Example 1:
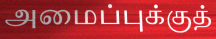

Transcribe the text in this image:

அமைப்புக்குத்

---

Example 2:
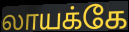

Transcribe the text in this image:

லாயக்கே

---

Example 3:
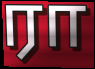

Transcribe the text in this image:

ரா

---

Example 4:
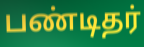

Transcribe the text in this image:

பண்டிதர்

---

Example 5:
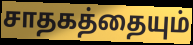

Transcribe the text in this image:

சாதகத்தையும்